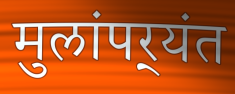
मुलांपर्यंत